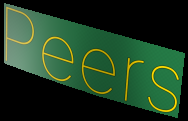
Peers